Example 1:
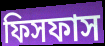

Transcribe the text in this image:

ফিসফাস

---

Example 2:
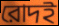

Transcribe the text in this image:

রোদই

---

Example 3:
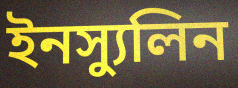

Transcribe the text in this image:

ইনস্যুলিন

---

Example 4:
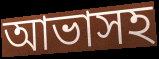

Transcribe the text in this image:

আভাসহ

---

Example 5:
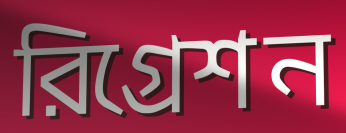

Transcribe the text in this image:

রিগ্রেশন